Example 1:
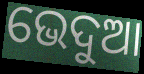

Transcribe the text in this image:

ଭେଦୁଆ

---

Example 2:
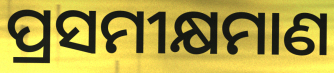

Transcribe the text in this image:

ପ୍ରସମୀକ୍ଷମାଣ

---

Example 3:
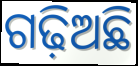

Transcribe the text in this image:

ଗଢ଼ିଅଛି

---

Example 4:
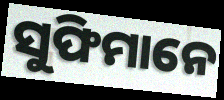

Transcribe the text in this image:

ସୁଫିମାନେ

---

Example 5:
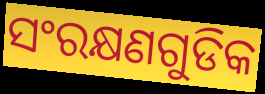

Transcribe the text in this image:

ସଂରକ୍ଷଣଗୁଡିକ